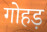
गोहड़